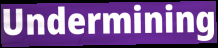
Undermining